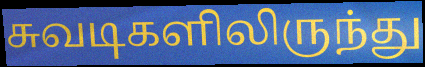
சுவடிகளிலிருந்து